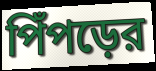
পিঁপড়ের